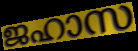
ജഹാസ